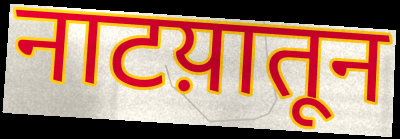
नाटय़ातून